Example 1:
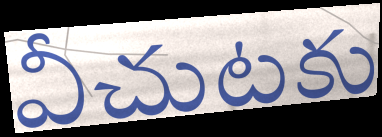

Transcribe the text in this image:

వీచుటకు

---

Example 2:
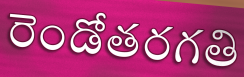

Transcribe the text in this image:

రెండోతరగతి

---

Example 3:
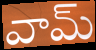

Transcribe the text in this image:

వామ్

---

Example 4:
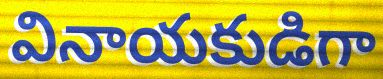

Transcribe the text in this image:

వినాయకుడిగా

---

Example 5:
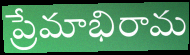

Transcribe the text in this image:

ప్రేమాభిరామ